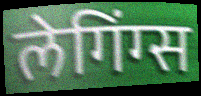
लेगिंग्स